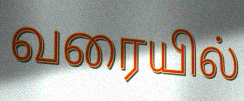
வரையில்